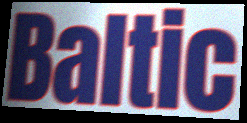
Baltic